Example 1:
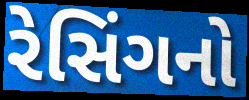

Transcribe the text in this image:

રેસિંગનો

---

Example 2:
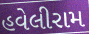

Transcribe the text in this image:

હવેલીરામ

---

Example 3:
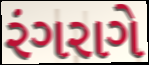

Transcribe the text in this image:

રંગરાગે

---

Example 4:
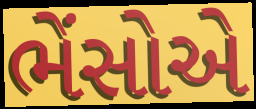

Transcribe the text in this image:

ભેંસોએ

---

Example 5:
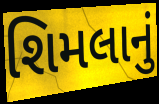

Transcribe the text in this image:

શિમલાનું